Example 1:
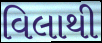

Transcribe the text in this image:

વિલાથી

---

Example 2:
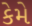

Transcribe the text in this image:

કેમે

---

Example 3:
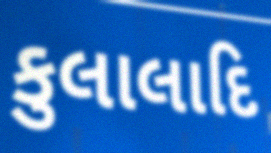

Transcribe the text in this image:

કુલાલાદિ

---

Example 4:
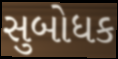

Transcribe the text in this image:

સુબોધક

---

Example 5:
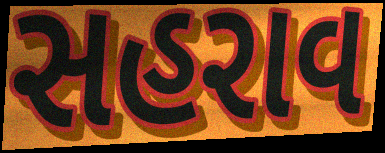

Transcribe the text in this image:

સહરાવ